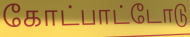
கோட்பாட்டோடு